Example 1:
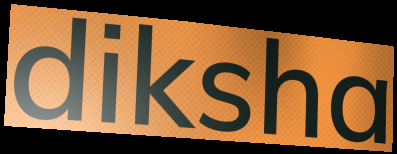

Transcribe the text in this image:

diksha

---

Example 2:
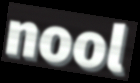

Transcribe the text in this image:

nool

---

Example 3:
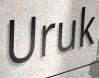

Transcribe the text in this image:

Uruk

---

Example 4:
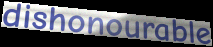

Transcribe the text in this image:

dishonourable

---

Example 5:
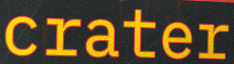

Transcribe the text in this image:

crater